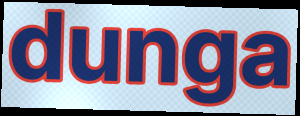
dunga